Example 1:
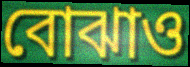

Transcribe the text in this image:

বোঝাও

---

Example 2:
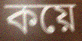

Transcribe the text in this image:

কয়ে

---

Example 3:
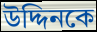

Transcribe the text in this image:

উদ্দিনকে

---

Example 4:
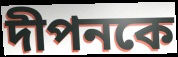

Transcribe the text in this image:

দীপনকে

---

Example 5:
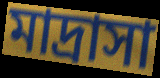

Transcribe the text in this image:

মাদ্রাসা